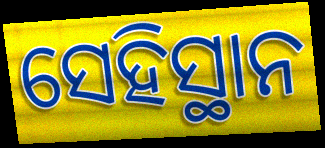
ସେହିସ୍ଥାନ